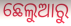
ଛେଲୁଆରୁ